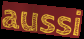
aussi